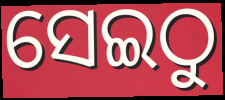
ସେଇଠୁ